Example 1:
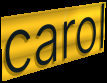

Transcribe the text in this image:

carol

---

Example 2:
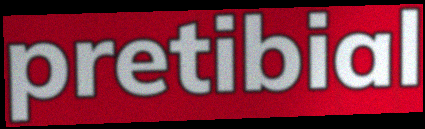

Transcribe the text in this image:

pretibial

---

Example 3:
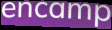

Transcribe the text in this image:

encamp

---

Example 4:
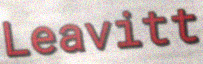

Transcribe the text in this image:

Leavitt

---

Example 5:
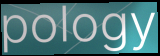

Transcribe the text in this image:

pology